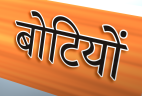
बोटियों